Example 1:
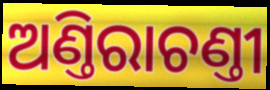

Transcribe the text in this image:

ଅଣ୍ତିରାଚଣ୍ତୀ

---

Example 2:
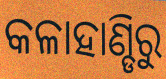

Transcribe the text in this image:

କଳାହାଣ୍ଡିରୁ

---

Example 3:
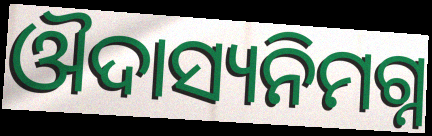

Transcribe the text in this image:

ଔଦାସ୍ୟନିମଗ୍ନ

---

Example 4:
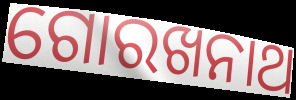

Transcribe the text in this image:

ଗୋରଖନାଥ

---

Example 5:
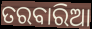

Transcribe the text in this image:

ତରବାରିଆ